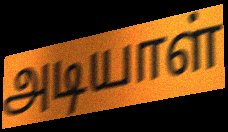
அடியாள்